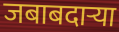
जबाबदाऱ्या